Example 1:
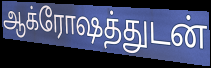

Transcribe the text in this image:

ஆக்ரோஷத்துடன்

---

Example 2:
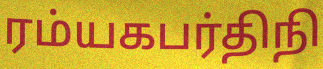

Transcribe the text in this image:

ரம்யகபர்திநி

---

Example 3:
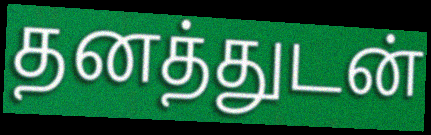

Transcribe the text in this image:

தனத்துடன்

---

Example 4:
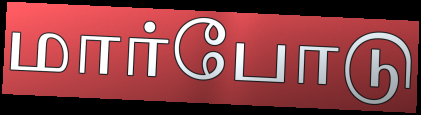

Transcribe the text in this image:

மார்போடு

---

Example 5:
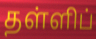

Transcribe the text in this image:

தள்ளிப்